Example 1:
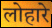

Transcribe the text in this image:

लोहारे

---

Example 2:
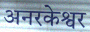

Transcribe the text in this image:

अनरकेश्वर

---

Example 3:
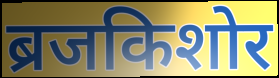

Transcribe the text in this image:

ब्रजकिशोर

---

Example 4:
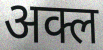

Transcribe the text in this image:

अक्ल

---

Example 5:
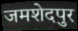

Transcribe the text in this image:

जमशेदपुर